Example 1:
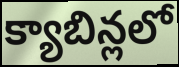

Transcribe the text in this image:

క్యాబిన్లలో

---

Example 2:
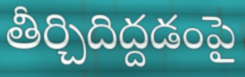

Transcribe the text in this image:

తీర్చిదిద్దడంపై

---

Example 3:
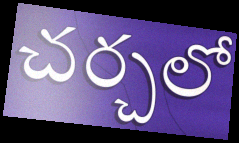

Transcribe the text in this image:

చర్చలో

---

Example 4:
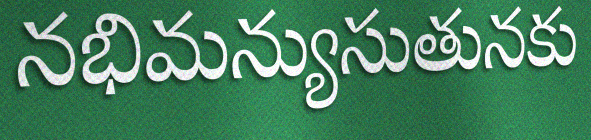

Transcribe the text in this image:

నభిమన్యుసుతునకు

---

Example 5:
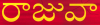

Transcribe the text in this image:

రాజువా